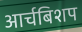
आर्चबिशप